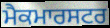
ਮੈਕਮਾਰਸਟਰ